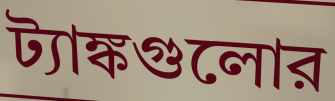
ট্যাঙ্কগুলোর